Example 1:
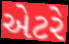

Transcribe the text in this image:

એટરે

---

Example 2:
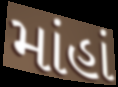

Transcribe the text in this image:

માંહાં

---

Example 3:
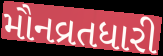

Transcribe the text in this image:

મૌનવ્રતધારી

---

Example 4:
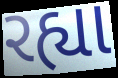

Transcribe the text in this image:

રહ્યા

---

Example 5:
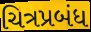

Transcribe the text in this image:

ચિત્રપ્રબંધ